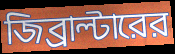
জিব্রাল্টারের